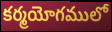
కర్మయోగములో